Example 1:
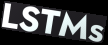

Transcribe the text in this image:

LSTMs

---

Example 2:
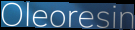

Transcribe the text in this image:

Oleoresin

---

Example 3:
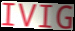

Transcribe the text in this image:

IVIG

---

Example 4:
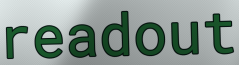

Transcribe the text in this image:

readout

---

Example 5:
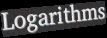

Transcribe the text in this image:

Logarithms